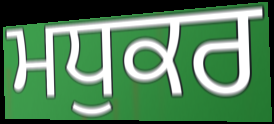
ਮਧੁਕਰ